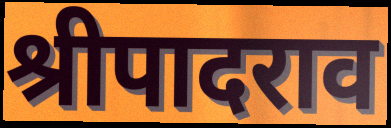
श्रीपादराव